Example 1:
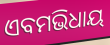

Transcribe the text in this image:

ଏବମଭିଧାୟ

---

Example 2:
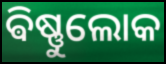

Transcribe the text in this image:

ଵିଷ୍ଣୁଲୋକ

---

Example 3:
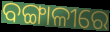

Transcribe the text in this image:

ବଙ୍ଗାଳୀରେ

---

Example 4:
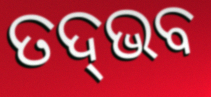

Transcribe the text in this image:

ତଦ୍‌ଭବ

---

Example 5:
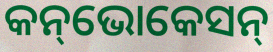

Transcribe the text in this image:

କନ୍‌ଭୋକେସନ୍